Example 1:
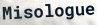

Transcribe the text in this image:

Misologue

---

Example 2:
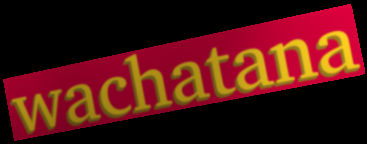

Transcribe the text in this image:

wachatana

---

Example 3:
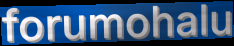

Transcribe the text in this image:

forumohalu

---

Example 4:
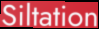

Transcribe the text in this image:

Siltation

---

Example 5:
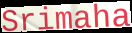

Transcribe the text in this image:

Srimaha